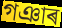
গঞাৰ